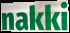
nakki